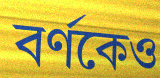
বর্ণকেও